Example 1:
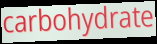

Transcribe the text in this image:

carbohydrate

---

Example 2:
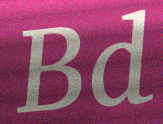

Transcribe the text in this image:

Bd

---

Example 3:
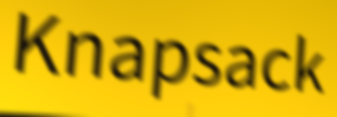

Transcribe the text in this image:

Knapsack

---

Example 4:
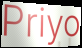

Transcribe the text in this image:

Priyo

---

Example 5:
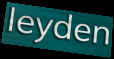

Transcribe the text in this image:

Ieyden